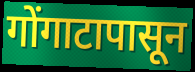
गोंगाटापासून